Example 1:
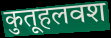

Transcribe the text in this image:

कुतूहलवश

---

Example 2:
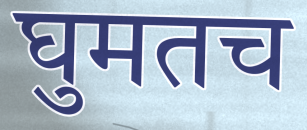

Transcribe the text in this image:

घुमतच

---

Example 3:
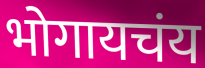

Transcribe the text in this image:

भोगायचंय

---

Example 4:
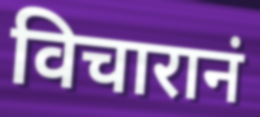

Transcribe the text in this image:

विचारानं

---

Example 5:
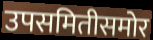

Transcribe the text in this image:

उपसमितीसमोर